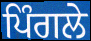
ਪਿੰਗਲੇ